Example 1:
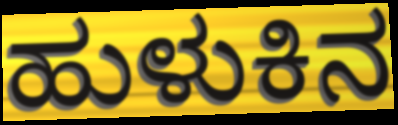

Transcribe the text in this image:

ಹುಳುಕಿನ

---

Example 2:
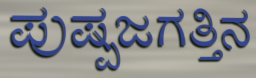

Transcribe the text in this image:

ಪುಷ್ಪಜಗತ್ತಿನ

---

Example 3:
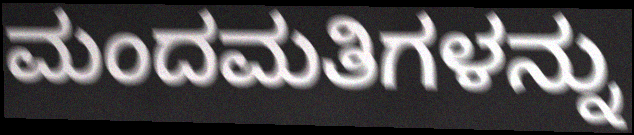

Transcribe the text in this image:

ಮಂದಮತಿಗಳನ್ನು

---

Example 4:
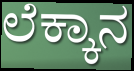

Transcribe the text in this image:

ಲೆಕ್ಕಾನ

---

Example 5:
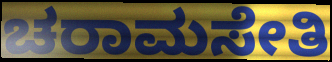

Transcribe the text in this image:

ಚರಾಮಸೇತಿ